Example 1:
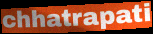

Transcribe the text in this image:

chhatrapati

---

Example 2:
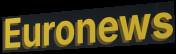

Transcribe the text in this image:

Euronews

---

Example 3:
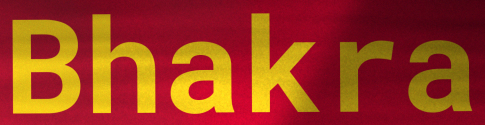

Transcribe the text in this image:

Bhakra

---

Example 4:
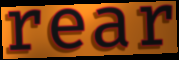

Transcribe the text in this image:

rear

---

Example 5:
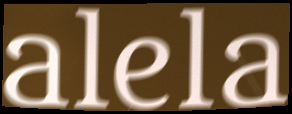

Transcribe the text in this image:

alela